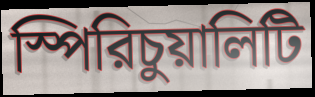
স্পিরিচুয়ালিটি